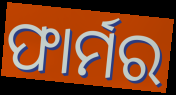
ଫାର୍ମର